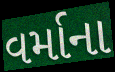
વર્માના